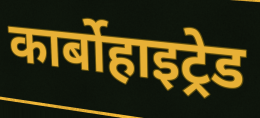
कार्बोहाइट्रेड